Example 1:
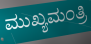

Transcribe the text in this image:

ಮುಖ್ಯಮಂತ್ರಿ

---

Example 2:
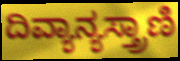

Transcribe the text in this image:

ದಿವ್ಯಾನ್ಯಸ್ತ್ರಾಣಿ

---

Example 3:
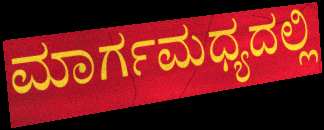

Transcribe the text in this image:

ಮಾರ್ಗಮಧ್ಯದಲ್ಲಿ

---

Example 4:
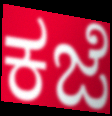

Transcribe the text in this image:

ಕಜೆ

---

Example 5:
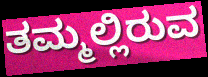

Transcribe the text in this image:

ತಮ್ಮಲ್ಲಿರುವ